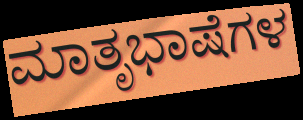
ಮಾತೃಭಾಷೆಗಳ